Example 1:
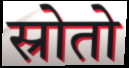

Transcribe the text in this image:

स्रोतो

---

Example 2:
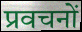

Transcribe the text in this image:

प्रवचनों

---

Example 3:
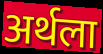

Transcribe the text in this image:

अर्थला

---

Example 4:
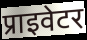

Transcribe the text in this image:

प्राइवेटर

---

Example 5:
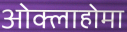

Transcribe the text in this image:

ओक्लाहोमा